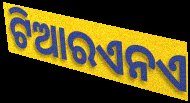
ଟିଆରଏନଏ